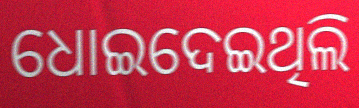
ଧୋଇଦେଇଥିଲି